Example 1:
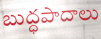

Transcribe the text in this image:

బుద్ధపాదాలు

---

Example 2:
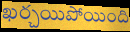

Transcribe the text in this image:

ఖర్చయిపోయింది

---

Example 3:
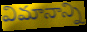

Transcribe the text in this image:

విమానాన్ని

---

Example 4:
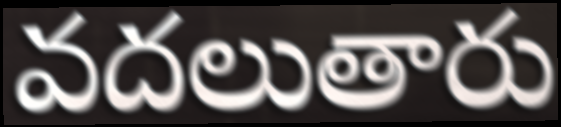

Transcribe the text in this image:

వదలుతారు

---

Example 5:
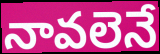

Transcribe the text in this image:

నావలెనే